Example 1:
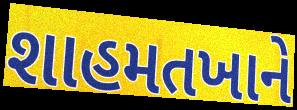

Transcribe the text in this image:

શાહમતખાને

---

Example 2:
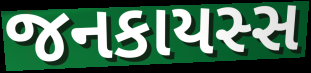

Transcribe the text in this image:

જનકાયસ્સ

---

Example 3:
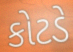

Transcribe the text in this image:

કોટડે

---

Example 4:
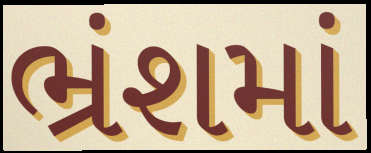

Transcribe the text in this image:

ભ્રંશમાં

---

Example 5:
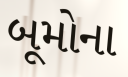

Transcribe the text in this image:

બૂમોના